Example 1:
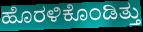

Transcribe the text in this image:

ಹೊರಳಿಕೊಂಡಿತ್ತು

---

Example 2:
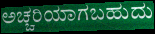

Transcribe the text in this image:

ಅಚ್ಚರಿಯಾಗಬಹುದು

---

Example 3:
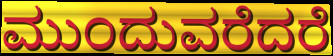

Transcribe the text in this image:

ಮುಂದುವರೆದರೆ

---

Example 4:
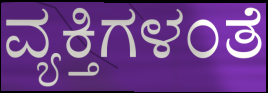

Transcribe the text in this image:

ವ್ಯಕ್ತಿಗಳಂತೆ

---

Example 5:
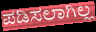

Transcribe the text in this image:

ಪಡಿಸಲಾಗಿಲ್ಲ